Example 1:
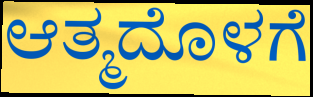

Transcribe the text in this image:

ಆತ್ಮದೊಳಗೆ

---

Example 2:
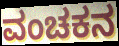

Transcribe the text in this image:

ವಂಚಕನ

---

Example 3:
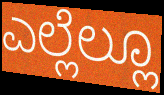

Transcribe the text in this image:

ಎಲ್ಲೆಲ್ಲೂ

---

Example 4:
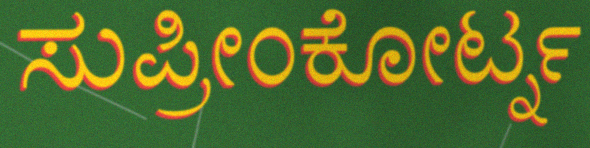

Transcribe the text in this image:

ಸುಪ್ರೀಂಕೋರ್ಟ್ನ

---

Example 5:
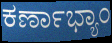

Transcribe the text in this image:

ಕರ್ಣಾಭ್ಯಾಂ